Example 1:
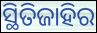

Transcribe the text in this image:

ସ୍ଥିତିଜାହିର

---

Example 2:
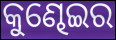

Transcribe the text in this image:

କୁଣ୍ଢେଇର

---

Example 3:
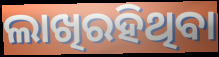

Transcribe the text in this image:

ଲାଖିରହିଥିବା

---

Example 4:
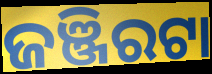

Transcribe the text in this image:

ଜଞ୍ଜିରଟା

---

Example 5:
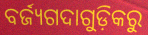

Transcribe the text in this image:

ବର୍ଜ୍ୟଗଦାଗୁଡ଼ିକରୁ